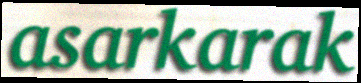
asarkarak